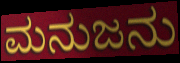
ಮನುಜನು